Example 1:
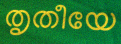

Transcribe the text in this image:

തൃതീയേ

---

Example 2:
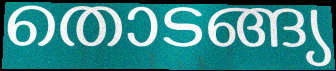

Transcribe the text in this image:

തൊടങ്ങ്യ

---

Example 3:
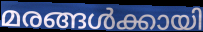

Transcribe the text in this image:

മരങ്ങൾക്കായി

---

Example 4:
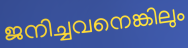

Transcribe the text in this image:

ജനിച്ചവനെങ്കിലും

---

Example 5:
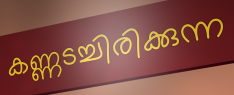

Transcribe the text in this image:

കണ്ണടച്ചിരിക്കുന്ന